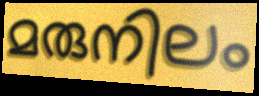
മരുനിലം